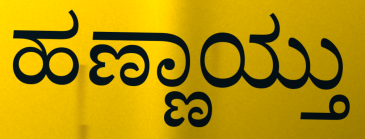
ಹಣ್ಣಾಯ್ತು